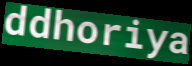
ddhoriya